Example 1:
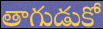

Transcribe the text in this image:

తాగుడుకో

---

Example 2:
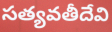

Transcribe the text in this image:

సత్యవతీదేవి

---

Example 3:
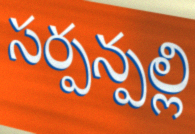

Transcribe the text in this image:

సర్పన్పల్లి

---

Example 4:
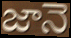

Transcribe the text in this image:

జానె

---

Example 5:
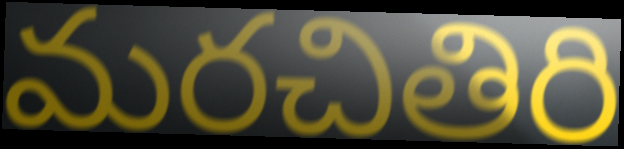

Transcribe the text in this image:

మరచితిరి